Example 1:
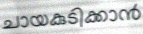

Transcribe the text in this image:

ചായകുടിക്കാൻ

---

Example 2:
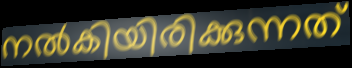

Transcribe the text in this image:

നൽകിയിരിക്കുന്നത്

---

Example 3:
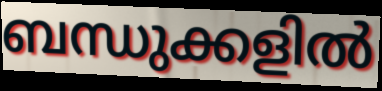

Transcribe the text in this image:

ബന്ധുക്കളിൽ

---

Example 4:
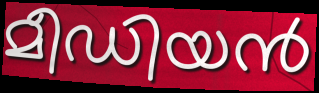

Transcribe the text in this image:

മീഡിയൻ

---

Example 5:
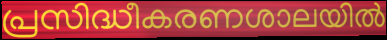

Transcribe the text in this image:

പ്രസിദ്ധീകരണശാലയിൽ